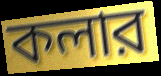
কলার